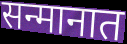
सन्मानात